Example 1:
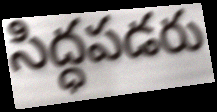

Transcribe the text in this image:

సిద్ధపడరు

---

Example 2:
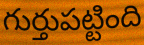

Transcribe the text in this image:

గుర్తుపట్టింది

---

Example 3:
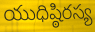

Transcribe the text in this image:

యుధిష్ఠిరస్య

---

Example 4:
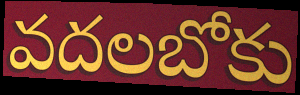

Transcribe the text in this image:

వదలబోకు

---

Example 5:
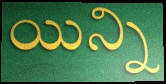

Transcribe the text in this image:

యిన్ని